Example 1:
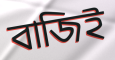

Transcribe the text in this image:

বাজিই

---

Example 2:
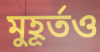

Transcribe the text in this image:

মুহূর্তও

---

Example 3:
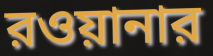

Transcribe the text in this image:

রওয়ানার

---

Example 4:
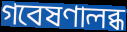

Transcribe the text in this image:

গবেষণালব্ধ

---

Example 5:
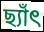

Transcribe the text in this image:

ছ্যাঁৎ